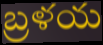
బ్రళయ